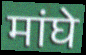
मांघे